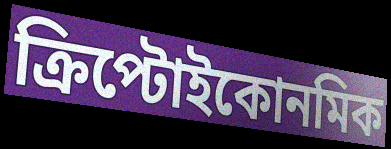
ক্রিপ্টোইকোনমিক